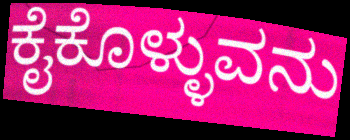
ಕೈಕೊಳ್ಳುವನು